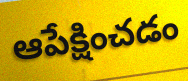
ఆపేక్షించడం